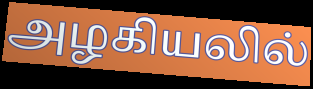
அழகியலில்